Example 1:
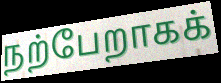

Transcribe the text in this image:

நற்பேறாகக்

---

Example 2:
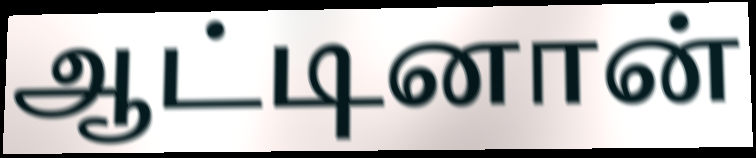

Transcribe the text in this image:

ஆட்டினான்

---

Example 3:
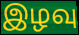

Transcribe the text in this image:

இழவு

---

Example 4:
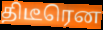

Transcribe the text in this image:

திடீரென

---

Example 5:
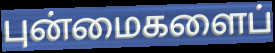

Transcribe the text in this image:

புன்மைகளைப்